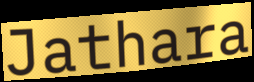
Jathara